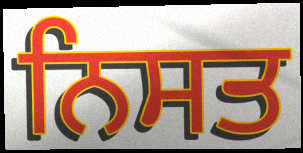
ਨਿਸਤ